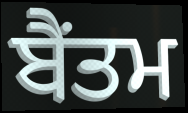
ਬੈਂਤਮ